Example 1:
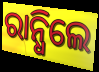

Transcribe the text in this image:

ରାନ୍ଧିଲେ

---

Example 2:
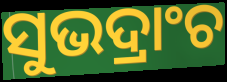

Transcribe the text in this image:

ସୁଭଦ୍ରାଂଚ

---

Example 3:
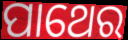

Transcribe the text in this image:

ପାଥେର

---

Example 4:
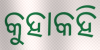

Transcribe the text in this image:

କୁହାକହି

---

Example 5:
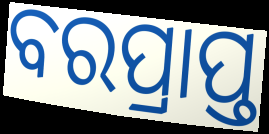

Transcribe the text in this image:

ବରପ୍ରାପ୍ତ